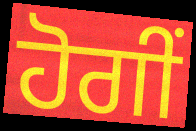
ਹੋਗੀਂ